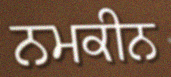
ਨਮਕੀਨ